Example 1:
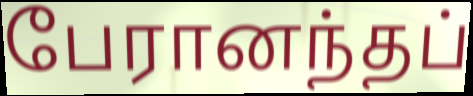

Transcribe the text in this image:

பேரானந்தப்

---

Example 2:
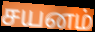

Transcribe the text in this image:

சயனம்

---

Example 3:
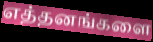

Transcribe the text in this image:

எத்தனங்களை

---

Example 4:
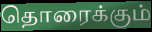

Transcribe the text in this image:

தொரைக்கும்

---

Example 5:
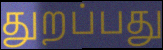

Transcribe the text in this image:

துறப்பது